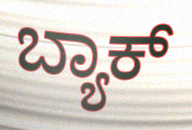
ಬ್ಯಾಕ್